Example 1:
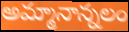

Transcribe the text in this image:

అమ్మానాన్నలం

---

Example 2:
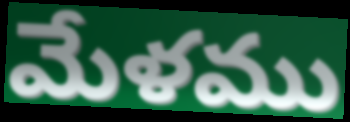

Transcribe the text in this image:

మేళము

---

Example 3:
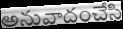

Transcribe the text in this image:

అనువాదంచేసి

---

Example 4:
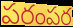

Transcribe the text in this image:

పరంపర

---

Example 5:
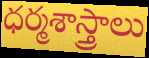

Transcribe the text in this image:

ధర్మశాస్త్రాలు